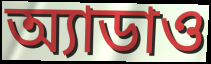
অ্যাডাও